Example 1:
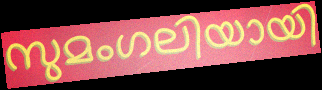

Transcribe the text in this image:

സുമംഗലിയായി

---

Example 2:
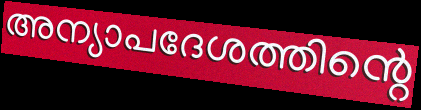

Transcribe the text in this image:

അന്യാപദേശത്തിന്റെ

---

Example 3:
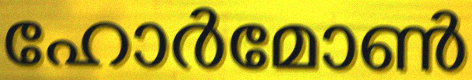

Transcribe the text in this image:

ഹോർമോൺ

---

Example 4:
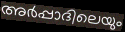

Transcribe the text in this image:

അർപ്പാദിലെയും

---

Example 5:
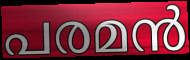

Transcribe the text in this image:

പരമൻ